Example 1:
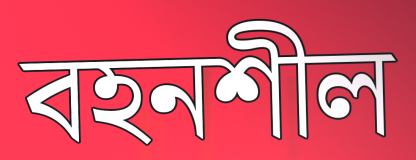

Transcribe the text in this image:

বহনশীল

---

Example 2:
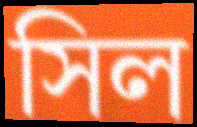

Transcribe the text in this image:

সিল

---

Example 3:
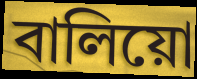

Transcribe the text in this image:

বালিয়ো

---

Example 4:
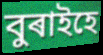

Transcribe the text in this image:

বুৰাইহে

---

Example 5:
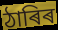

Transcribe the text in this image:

ঠাৰিৰ